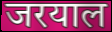
जरयाल